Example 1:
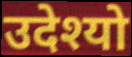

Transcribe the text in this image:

उदेश्यो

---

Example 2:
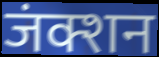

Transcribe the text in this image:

जंक्शन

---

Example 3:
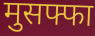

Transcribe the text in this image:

मुसफ्फा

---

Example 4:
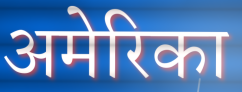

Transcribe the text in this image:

अमेरिका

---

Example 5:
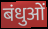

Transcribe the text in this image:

बंधुओं